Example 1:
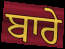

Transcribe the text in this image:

ਬਾਰੇ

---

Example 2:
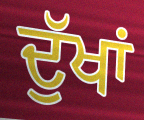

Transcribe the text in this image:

ਦੁੱਖਾਂ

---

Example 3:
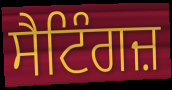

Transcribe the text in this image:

ਸੈਟਿੰਗਜ਼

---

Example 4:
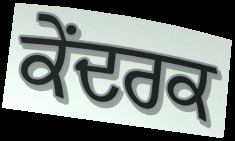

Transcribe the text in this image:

ਕੇਂਦਰਕ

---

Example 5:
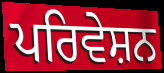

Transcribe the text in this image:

ਪਰਿਵੇਸ਼ਨ